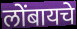
लोंबायचे